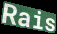
Rais